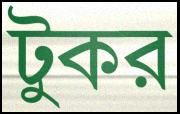
টুকর